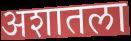
अशातला